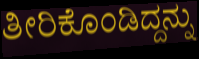
ತೀರಿಕೊಂಡಿದ್ದನ್ನು